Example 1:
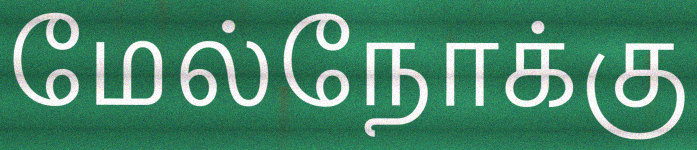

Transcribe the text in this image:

மேல்நோக்கு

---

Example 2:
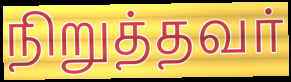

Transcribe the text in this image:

நிறுத்தவர்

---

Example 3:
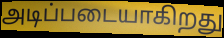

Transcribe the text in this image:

அடிப்படையாகிறது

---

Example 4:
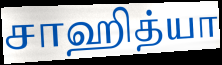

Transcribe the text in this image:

சாஹித்யா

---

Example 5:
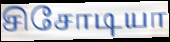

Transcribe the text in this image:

சிசோடியா